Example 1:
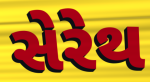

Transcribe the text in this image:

સેરેથ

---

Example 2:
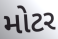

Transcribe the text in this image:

મોટર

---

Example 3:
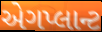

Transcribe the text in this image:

એગપ્લાન્ટ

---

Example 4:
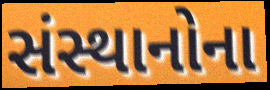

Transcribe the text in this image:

સંસ્થાનોના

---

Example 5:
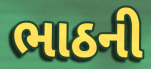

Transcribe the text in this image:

ભાઠની